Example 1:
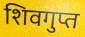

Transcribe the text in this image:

शिवगुप्त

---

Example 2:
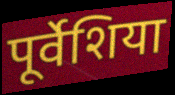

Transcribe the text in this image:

पूर्वेशिया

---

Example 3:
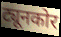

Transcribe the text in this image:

ट्यूनकोर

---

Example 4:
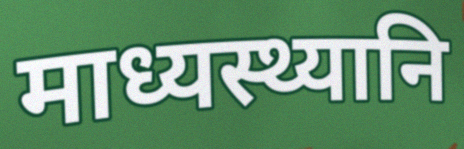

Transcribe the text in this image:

माध्यस्थ्यानि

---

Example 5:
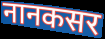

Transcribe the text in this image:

नानकसर